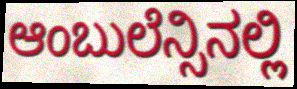
ಆಂಬುಲೆನ್ಸಿನಲ್ಲಿ